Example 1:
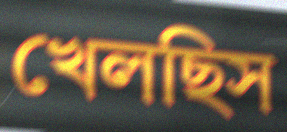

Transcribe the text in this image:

খেলছিস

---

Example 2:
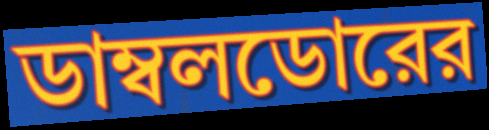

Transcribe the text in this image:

ডাম্বলডোরের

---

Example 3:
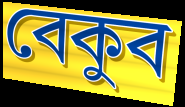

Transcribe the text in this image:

বেকুব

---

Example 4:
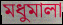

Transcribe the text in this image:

মধুমালা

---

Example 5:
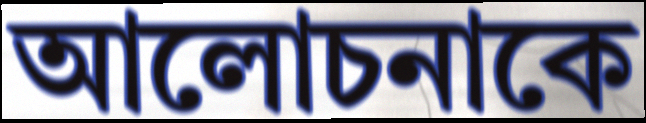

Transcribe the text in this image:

আলোচনাকে